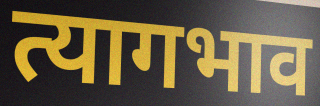
त्यागभाव